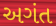
અગંત